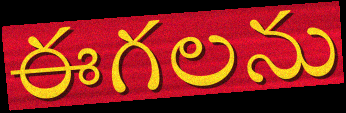
ఈగలను